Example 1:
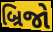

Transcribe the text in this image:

બ્રિજો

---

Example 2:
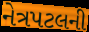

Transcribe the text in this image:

નેત્રપટલની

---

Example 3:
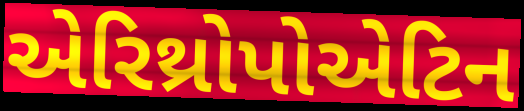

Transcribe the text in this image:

એરિથ્રોપોએટિન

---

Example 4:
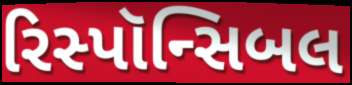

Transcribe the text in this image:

રિસ્પૉન્સિબલ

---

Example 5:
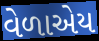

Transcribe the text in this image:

વેળાએય